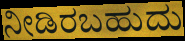
ನೀಡಿರಬಹುದು